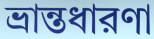
ভ্রান্তধারণা